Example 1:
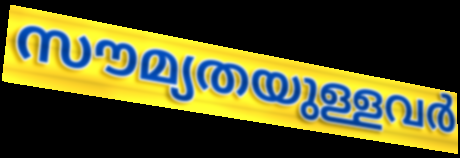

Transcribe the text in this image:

സൗമ്യതയുള്ളവർ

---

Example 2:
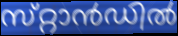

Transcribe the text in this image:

സ്‌റ്റാൻഡിൽ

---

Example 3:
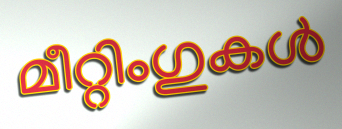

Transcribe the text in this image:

മീറ്റിംഗുകൾ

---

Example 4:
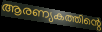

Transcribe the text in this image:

ആരണ്യകത്തിന്റെ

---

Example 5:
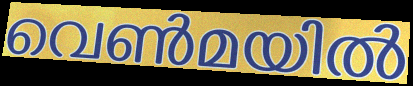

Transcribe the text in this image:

വെൺമയിൽ